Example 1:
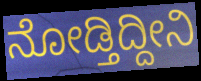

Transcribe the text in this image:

ನೋಡ್ತಿದ್ದೀನಿ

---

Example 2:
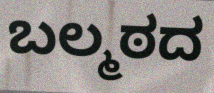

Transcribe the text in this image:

ಬಲ್ಮಠದ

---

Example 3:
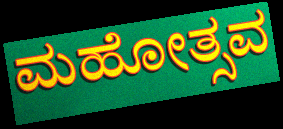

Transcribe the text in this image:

ಮಹೋತ್ಸವ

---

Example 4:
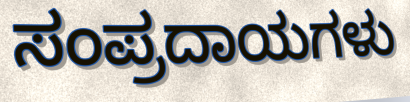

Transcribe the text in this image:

ಸಂಪ್ರದಾಯಗಳು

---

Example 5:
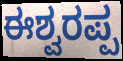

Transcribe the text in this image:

ಈಶ್ವರಪ್ಪ